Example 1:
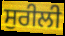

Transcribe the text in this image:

ਸੁਰੀਲੀ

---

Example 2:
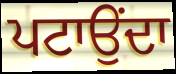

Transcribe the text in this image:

ਪਟਾਉਂਦਾ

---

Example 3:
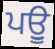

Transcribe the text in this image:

ਪਉੂ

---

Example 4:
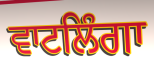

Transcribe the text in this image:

ਵਾਟਲਿੰਗਾ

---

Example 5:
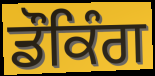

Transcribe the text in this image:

ਡੌਕਿੰਗ